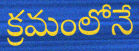
క్రమంలోనే